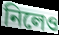
নিলেও